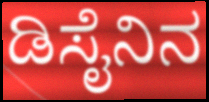
ಡಿಸೈನಿನ